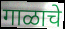
गाळाचे